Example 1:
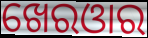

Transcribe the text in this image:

ଖେରଓାର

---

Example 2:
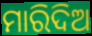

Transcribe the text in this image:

ମାରିଦିଅ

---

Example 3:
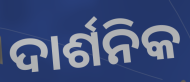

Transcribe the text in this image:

ଦାର୍ଶନିକ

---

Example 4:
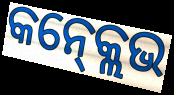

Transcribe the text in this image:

କନ୍କ୍ଲେଭ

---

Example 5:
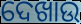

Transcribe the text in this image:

ଦେଖାଉ